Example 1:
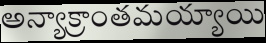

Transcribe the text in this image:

అన్యాక్రాంతమయ్యాయి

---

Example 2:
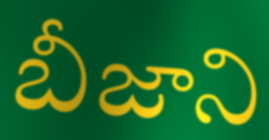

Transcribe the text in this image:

బీజాని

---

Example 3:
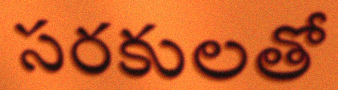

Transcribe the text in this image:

సరకులతో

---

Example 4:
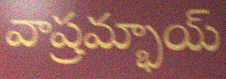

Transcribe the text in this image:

వాష్రమ్భాయ్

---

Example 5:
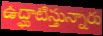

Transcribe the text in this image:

ఉద్ఘాటిస్తున్నారు